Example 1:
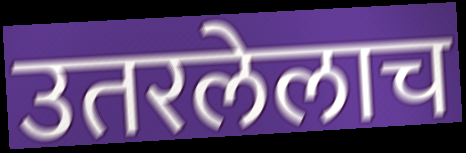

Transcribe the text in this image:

उतरलेलाच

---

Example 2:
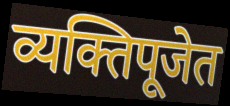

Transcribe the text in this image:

व्यक्तिपूजेत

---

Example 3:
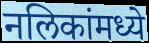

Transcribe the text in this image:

नलिकांमध्ये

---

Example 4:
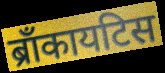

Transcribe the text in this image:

ब्राँकायटिस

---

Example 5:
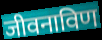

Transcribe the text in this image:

जीवनाविण